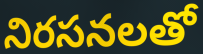
నిరసనలతో